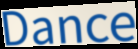
Dance